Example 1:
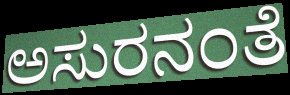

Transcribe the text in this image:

ಅಸುರನಂತೆ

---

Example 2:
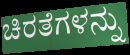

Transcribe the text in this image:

ಚಿರತೆಗಳನ್ನು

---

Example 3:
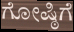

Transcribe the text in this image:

ಗೋಷ್ಠಿಗೆ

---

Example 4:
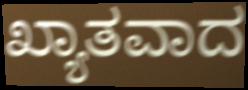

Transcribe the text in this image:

ಖ್ಯಾತವಾದ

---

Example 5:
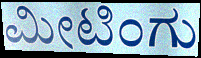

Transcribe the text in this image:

ಮೀಟಿಂಗು